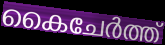
കൈചേർത്ത്